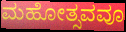
ಮಹೋತ್ಸವವೂ